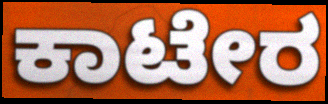
ಕಾಟೇರ